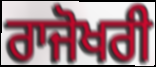
ਰਾਜੋਖਰੀ